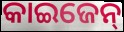
କାଇଜେନ୍